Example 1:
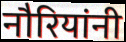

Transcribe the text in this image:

नौरियांनी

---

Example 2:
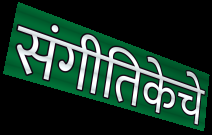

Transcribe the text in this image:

संगीतिकेचे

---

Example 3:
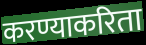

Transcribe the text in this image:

करण्याकरिता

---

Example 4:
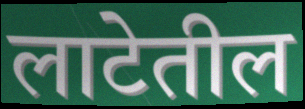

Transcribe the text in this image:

लाटेतील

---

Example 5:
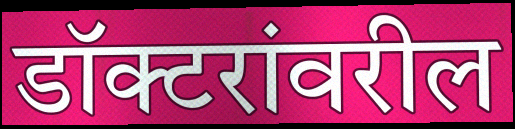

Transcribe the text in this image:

डॉक्टरांवरील